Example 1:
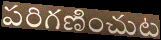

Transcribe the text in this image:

పరిగణించుట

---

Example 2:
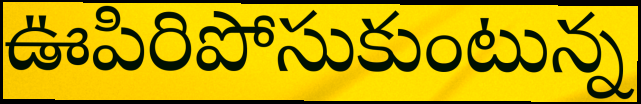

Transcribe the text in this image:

ఊపిరిపోసుకుంటున్న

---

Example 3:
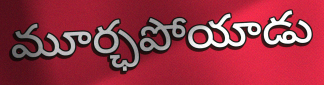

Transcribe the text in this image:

మూర్ఛపోయాడు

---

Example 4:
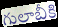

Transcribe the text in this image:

గులాబీకి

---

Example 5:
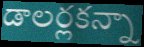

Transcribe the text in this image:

డాలర్లకన్నా